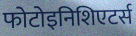
फोटोइनिशिएटर्स